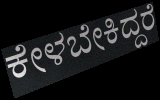
ಕೇಳಬೇಕಿದ್ದರೆ